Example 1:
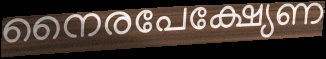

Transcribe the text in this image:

നൈരപേക്ഷ്യേണ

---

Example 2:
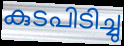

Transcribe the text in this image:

കുടപിടിച്ചു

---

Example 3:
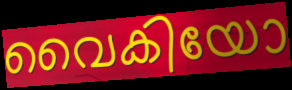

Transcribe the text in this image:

വൈകിയോ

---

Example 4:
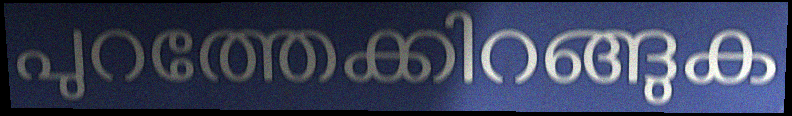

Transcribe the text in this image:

പുറത്തേക്കിറങ്ങുക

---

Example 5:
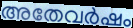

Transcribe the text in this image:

അതേവർഷം